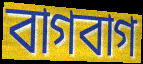
বাগবাগ